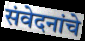
संवेदनांचे